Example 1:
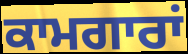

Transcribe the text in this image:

ਕਾਮਗਾਰਾਂ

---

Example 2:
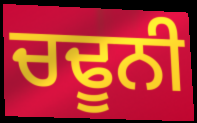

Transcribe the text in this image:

ਚਢੂਨੀ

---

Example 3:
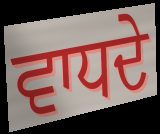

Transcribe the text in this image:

ਵਾਧਦੇ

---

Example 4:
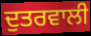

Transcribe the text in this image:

ਦੁਤਰਵਾਲੀ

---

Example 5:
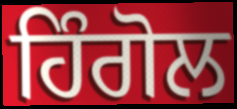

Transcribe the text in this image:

ਹਿੰਗੋਲ